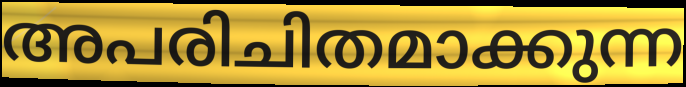
അപരിചിതമാക്കുന്ന